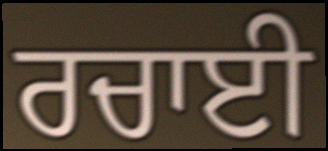
ਰਚਾਈ